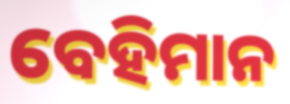
ବେହିମାନ